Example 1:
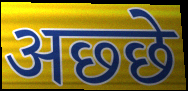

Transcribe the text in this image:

अछ्छे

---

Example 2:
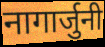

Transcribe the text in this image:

नागार्जुनी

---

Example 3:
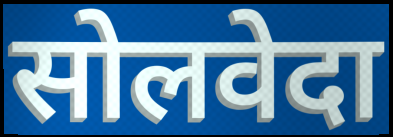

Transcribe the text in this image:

सोलवेदा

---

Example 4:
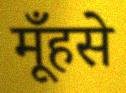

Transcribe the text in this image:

मूँहसे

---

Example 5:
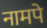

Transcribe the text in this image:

नामपे